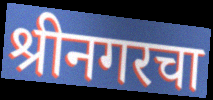
श्रीनगरचा